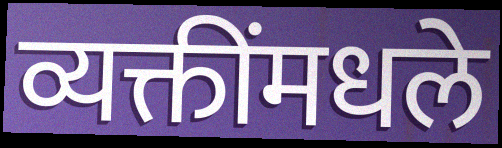
व्यक्तींमधले